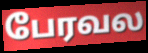
பேரவல